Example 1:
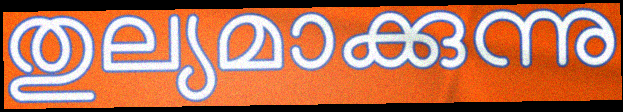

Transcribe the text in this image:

തുല്യമാക്കുന്നു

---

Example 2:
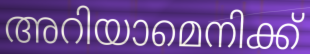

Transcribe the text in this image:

അറിയാമെനിക്ക്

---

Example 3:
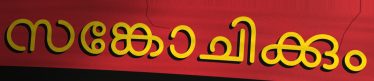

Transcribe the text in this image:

സങ്കോചിക്കും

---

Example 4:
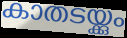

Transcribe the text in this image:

കാതടയ്ക്കും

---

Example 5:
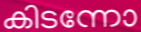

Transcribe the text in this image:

കിടന്നോ